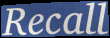
Recall